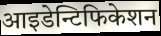
आइडेन्टिफिकेशन